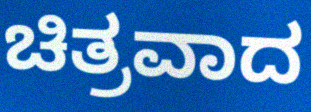
ಚಿತ್ರವಾದ